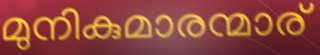
മുനികുമാരന്മാര്